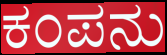
ಕಂಪನು